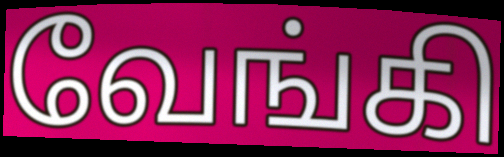
வேங்கி